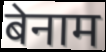
बेनाम